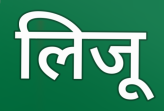
लिजू